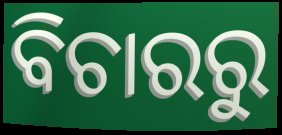
ବିଚାରରୁ